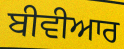
ਬੀਵੀਆਰ